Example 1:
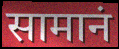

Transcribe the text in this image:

सामानं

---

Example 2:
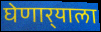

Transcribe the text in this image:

घेणार्‍याला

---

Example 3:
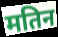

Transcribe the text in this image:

मतिन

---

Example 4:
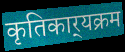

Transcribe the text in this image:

कृतिकार्यक्रम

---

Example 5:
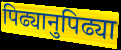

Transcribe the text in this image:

पिढ्यानुपिढ्या